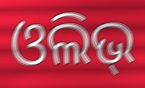
ଓଲିଭ୍